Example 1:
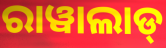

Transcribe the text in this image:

ରାୱାଲାଡ୍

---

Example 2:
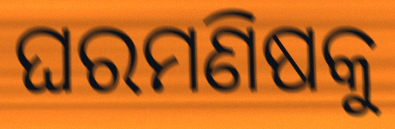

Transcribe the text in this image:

ଘରମଣିଷକୁ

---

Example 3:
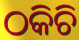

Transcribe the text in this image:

ଠକିଚି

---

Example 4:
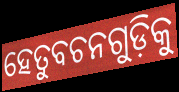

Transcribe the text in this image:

ହେତୁବଚନଗୁଡ଼ିକୁ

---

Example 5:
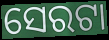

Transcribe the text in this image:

ସେରଟା